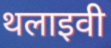
थलाइवी